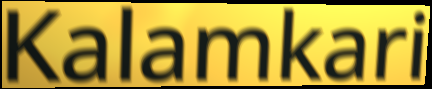
Kalamkari